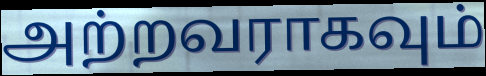
அற்றவராகவும்